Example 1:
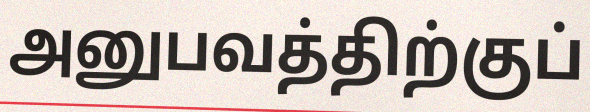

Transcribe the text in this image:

அனுபவத்திற்குப்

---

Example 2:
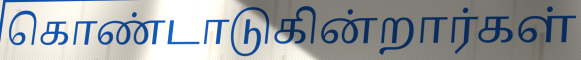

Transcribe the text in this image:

கொண்டாடுகின்றார்கள்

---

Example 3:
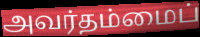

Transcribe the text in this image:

அவர்தம்மைப்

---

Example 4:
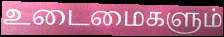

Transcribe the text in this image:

உடைமைகளும்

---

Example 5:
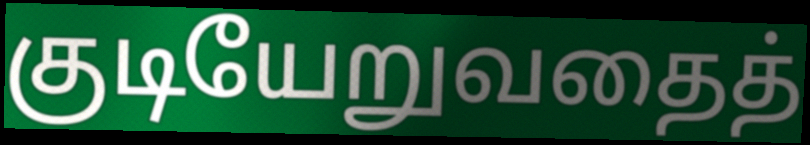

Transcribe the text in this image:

குடியேறுவதைத்